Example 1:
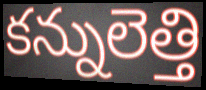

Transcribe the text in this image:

కన్నులెత్తి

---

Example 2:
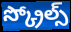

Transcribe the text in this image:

స్క్రోల్స్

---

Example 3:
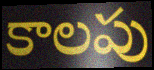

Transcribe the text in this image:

కాలపు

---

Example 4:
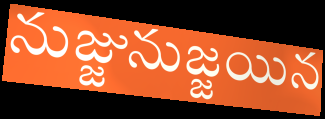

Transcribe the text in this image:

నుజ్జునుజ్జయిన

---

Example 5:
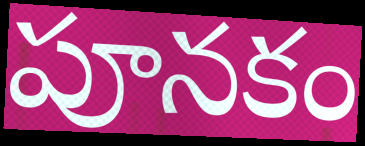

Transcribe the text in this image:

పూనకం